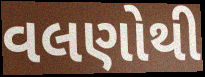
વલણોથી